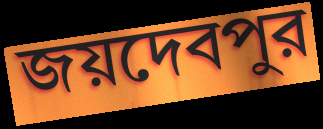
জয়দেবপুর